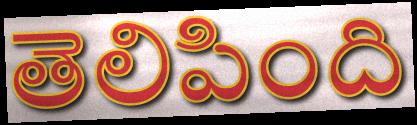
తెలిపింది